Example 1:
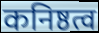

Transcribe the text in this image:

कनिष्ठत्व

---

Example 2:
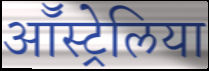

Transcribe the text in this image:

ऑॅस्ट्रेलिया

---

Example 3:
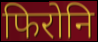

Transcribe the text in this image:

फिरोनि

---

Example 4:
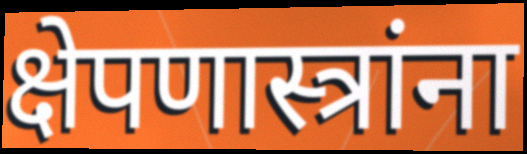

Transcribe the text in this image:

क्षेपणास्त्रांना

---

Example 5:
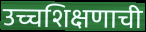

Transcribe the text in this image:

उच्चशिक्षणाची